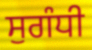
ਸੁਗੰਧੀ